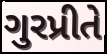
ગુરપ્રીતે